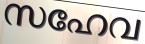
സഹേവ